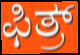
ಫಿತ್ರ್